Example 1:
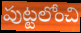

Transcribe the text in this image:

పుట్టలోంచి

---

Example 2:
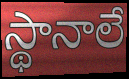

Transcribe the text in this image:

స్థానాలే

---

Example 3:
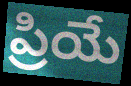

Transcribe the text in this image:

ప్రియే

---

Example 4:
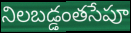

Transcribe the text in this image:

నిలబడ్డంతసేపూ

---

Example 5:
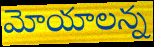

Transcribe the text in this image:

మోయాలన్న